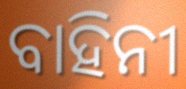
ବାହିନୀ